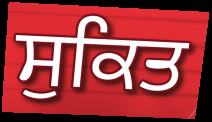
ਸੁਕਿਤ